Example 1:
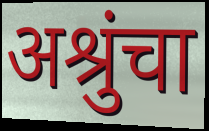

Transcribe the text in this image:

अश्रुंचा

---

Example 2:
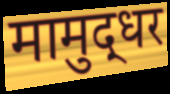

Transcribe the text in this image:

मामुद्धर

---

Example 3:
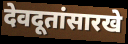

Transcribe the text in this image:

देवदूतांसारखे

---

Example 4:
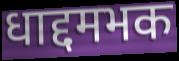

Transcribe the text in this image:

धाद्दमभक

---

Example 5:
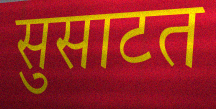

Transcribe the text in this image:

सुसाटत